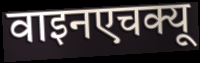
वाइनएचक्यू